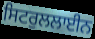
ਸਿਟਰੁਲਲਾਈਨ